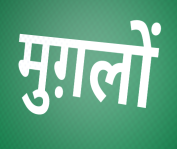
मुग़लों